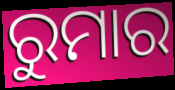
ରୁମାର